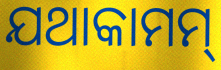
ଯଥାକାମମ୍